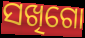
ସଖିଗୋ